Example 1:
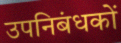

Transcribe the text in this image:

उपनिबंधकों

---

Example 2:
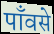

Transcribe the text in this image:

पाँवसे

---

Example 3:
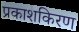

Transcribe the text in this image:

प्रकाशकिरण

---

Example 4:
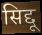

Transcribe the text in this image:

सिद्दू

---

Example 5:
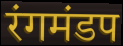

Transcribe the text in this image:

रंगमंडप